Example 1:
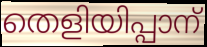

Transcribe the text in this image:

തെളിയിപ്പാന്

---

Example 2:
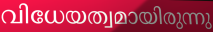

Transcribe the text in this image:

വിധേയത്വമായിരുന്നു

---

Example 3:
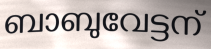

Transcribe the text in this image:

ബാബുവേട്ടന്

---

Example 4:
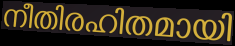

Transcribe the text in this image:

നീതിരഹിതമായി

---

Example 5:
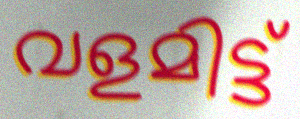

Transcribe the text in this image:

വളമിട്ട്